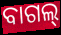
ବାଗଲ୍